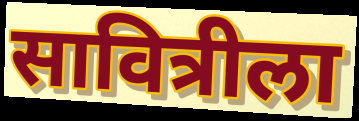
सावित्रीला